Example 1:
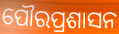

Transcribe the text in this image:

ପୌରପ୍ରଶାସନ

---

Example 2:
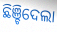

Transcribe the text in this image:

ଛିଞ୍ଚିଦେଲା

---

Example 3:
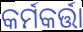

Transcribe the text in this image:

କର୍ମକର୍ତ୍ତା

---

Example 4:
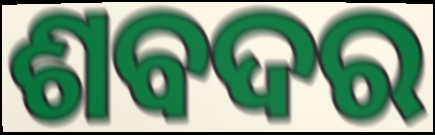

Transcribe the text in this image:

ଶବଦର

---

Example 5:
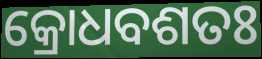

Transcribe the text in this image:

କ୍ରୋଧବଶତଃ